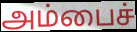
அம்பைச்